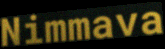
Nimmava